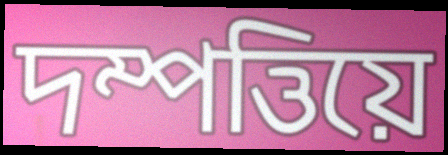
দম্পত্তিয়ে